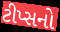
ટીપ્સનો